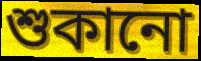
শুকানো